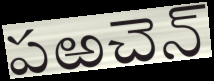
పఱచెన్